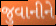
જુવાનીને